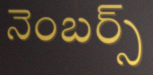
నెంబర్స్